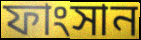
ফাংসান